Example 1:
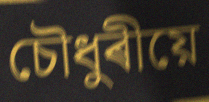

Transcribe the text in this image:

চৌধুৰীয়ে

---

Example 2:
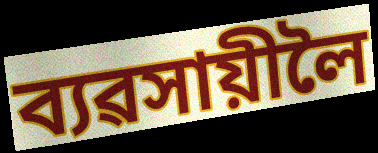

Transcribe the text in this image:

ব্যৱসায়ীলৈ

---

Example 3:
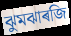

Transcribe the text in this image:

ঝুমঝাৰজি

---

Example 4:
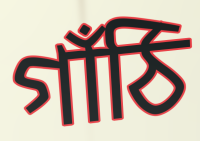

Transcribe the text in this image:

গাঁঠি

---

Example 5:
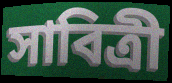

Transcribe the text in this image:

সাবিত্ৰী